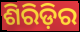
ଶିରିଡ଼ିର